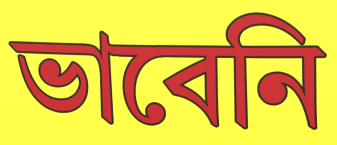
ভাবেনি